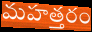
మహత్తరం